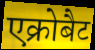
एक्रोबैट